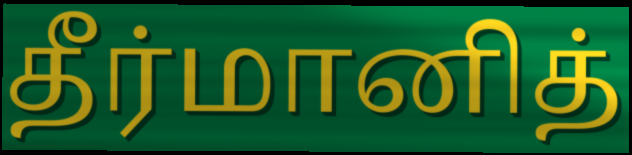
தீர்மானித்